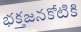
భక్తజనకోటికి